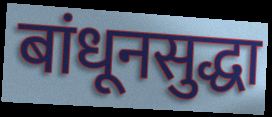
बांधूनसुद्धा